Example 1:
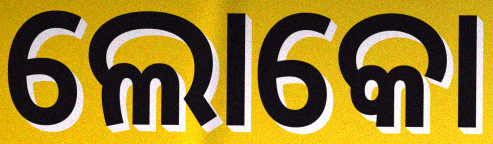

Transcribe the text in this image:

ଲୋକୋ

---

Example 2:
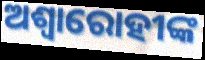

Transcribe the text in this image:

ଅଶ୍ୱାରୋହୀଙ୍କ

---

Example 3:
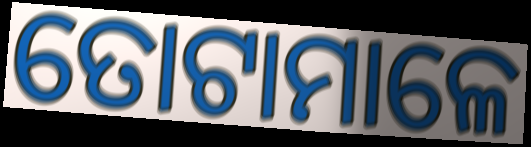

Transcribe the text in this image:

ତୋଟାମାଳେ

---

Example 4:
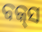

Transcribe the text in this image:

ବକ୍‌ସ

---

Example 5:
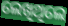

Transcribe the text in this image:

ଲେଖିଥିଲେ